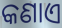
କଣାଏ